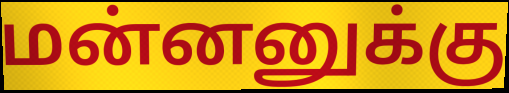
மன்னனுக்கு